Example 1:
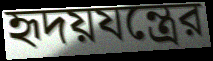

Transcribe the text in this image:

হৃদয়যন্ত্রের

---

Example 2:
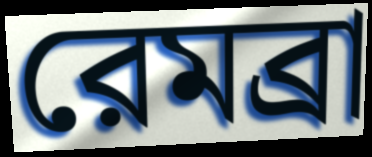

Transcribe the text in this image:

রেমব্রা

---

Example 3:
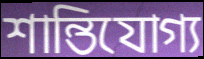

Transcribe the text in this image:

শান্তিযোগ্য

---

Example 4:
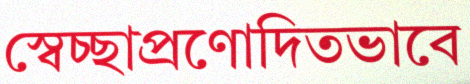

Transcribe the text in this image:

স্বেচ্ছাপ্রণোদিতভাবে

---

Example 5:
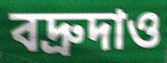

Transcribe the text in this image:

বদ্রুদাও